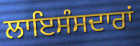
ਲਾਇਸੰਸਦਾਰਾਂ